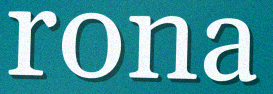
rona